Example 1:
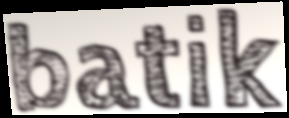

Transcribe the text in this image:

batik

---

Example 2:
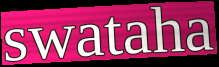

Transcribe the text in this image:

swataha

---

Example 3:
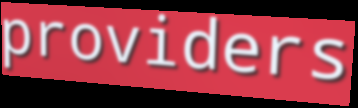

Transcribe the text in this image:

providers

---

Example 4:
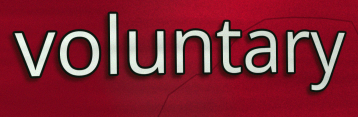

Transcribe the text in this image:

voluntary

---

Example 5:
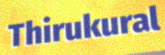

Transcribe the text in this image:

Thirukural